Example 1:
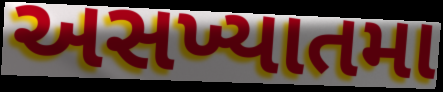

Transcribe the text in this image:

અસખ્યાતમા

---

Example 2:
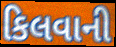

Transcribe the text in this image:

કિલવાની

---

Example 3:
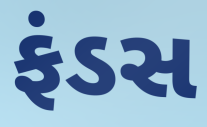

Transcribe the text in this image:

ફંડસ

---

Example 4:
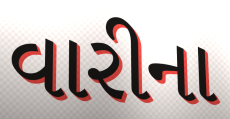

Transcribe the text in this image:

વારીના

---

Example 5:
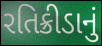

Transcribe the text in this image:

રતિક્રીડાનું